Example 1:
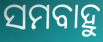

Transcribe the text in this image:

ସମବାହୁ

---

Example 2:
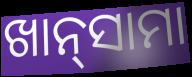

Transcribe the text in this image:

ଖାନ୍‌ସାମା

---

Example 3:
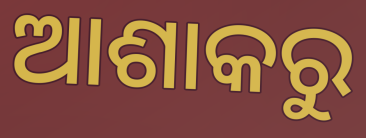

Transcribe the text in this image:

ଆଶାକରୁ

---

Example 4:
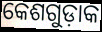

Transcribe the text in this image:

କେଶଗୁଡ଼ାକ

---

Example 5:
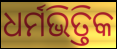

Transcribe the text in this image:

ଧର୍ମଭିତ୍ତିକ